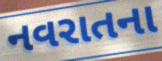
નવરાતના